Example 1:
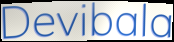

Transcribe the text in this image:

Devibala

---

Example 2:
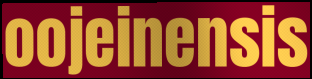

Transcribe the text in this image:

oojeinensis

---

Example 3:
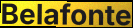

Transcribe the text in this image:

Belafonte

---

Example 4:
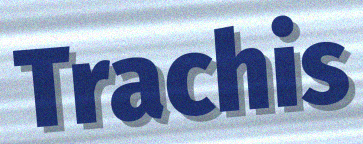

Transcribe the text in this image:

Trachis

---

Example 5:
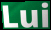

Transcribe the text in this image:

Lui